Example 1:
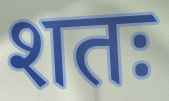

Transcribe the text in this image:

शतः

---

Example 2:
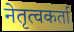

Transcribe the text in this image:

नेतृत्वकर्ता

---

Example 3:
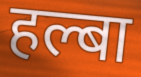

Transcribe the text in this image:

हल्बा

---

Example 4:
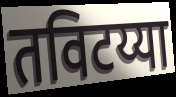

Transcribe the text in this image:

तविटय्या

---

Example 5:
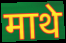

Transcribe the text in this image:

माथे